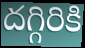
దగ్గిరికి